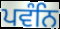
ਪਵੰਨਿ